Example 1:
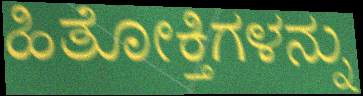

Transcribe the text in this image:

ಹಿತೋಕ್ತಿಗಳನ್ನು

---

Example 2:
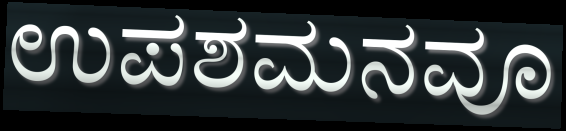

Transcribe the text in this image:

ಉಪಶಮನವೂ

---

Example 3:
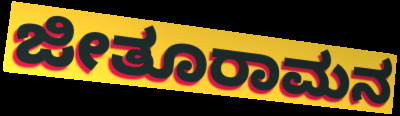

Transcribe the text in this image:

ಜೀತೂರಾಮನ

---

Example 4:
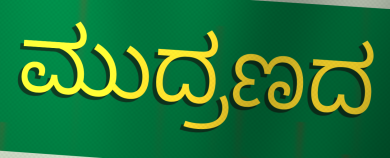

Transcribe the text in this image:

ಮುದ್ರಣದ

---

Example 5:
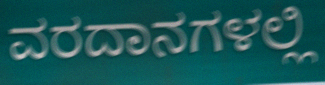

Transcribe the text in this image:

ವರದಾನಗಳಲ್ಲಿ